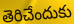
తెరిచేందుకు